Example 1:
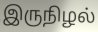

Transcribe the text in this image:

இருநிழல்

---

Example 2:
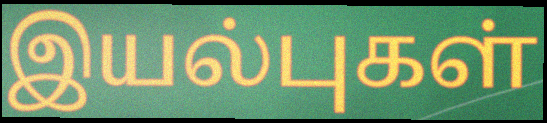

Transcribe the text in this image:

இயல்புகள்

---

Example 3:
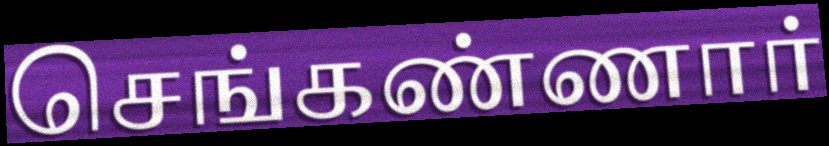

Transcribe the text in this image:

செங்கண்ணார்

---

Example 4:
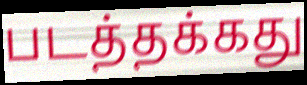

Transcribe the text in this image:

படத்தக்கது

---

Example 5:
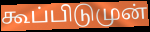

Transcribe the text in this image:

கூப்பிடுமுன்